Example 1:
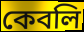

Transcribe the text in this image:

কেবলি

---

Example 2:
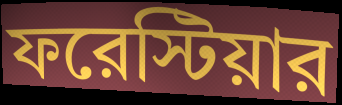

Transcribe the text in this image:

ফরেস্টিয়ার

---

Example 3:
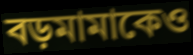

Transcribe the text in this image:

বড়মামাকেও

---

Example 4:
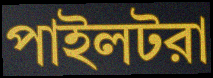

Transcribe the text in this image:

পাইলটরা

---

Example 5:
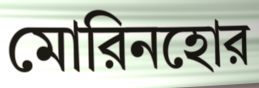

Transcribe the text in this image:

মোরিনহোর